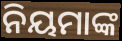
ନିୟମାଙ୍କ